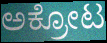
ಅಕ್ರೋಟ